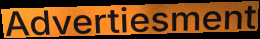
Advertiesment